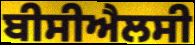
ਬੀਸੀਐਲਸੀ